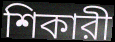
শিকারী